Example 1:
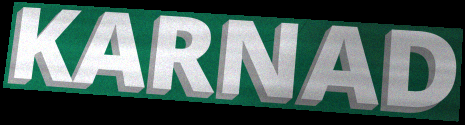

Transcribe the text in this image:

KARNAD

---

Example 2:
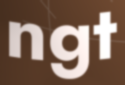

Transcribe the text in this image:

ngt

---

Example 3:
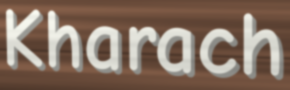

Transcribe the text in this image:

Kharach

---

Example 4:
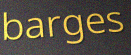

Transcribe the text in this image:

barges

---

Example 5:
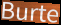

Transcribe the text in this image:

Burte